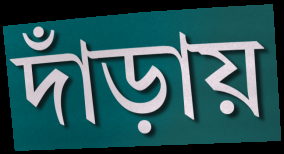
দাঁড়ায়